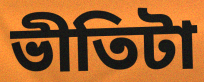
ভীতিটা